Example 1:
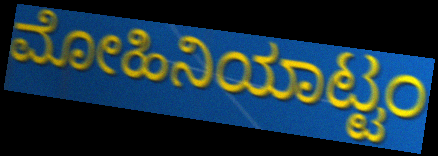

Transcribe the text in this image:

ಮೋಹಿನಿಯಾಟ್ಟಂ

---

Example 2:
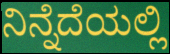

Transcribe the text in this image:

ನಿನ್ನೆದೆಯಲ್ಲಿ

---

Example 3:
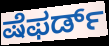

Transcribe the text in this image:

ಷೆಫರ್ಡ್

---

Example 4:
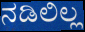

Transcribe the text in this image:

ನಡಿಲಿಲ್ಲ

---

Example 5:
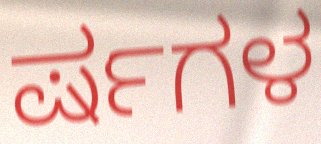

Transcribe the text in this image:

ರ್ಷಗಳ